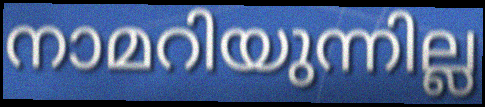
നാമറിയുന്നില്ല